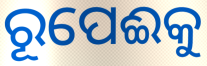
ରୂପେଈକୁ